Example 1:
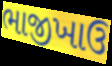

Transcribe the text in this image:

ભાજીખાઉ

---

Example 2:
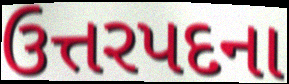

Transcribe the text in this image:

ઉત્તરપદના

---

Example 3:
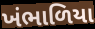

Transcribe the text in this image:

ખંભાળિયા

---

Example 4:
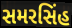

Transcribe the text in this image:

સમરસિંહ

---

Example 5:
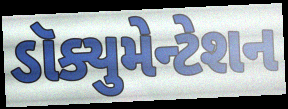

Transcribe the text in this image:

ડૉક્યુમેન્ટેશન